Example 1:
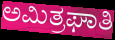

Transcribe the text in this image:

ಅಮಿತ್ರಘಾತಿ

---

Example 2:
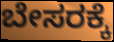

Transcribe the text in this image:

ಬೇಸರಕ್ಕೆ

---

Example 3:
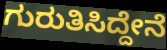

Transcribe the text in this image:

ಗುರುತಿಸಿದ್ದೇನೆ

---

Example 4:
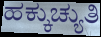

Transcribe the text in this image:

ಹಕ್ಕುಚ್ಯುತಿ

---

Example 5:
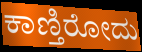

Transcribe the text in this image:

ಕಾಣ್ತಿರೋದು